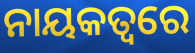
ନାୟକତ୍ବରେ